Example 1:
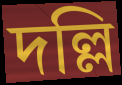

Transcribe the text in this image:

দল্লি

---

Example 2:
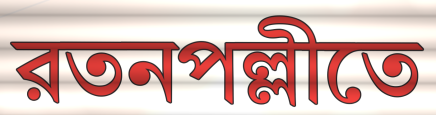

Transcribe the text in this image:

রতনপল্লীতে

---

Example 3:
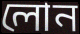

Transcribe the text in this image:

লোন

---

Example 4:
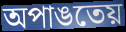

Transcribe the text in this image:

অপাঙতেয়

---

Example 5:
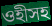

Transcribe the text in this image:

ওহীসহ